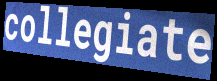
collegiate